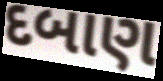
દબાણ